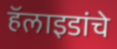
हॅलाइडांचे